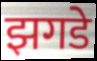
झगडे